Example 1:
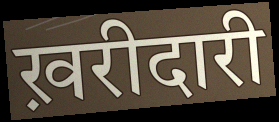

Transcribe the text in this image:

ख़रीदारी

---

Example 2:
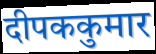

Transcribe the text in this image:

दीपककुमार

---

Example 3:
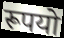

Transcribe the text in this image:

रूपयो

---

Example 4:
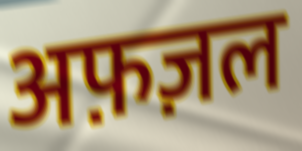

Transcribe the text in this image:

अफ़ज़ल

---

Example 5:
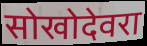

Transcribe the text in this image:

सोखोदेवरा